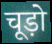
चूड़ो